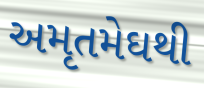
અમૃતમેઘથી